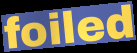
foiled